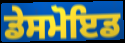
ਡੇਸਮੋਇਡ